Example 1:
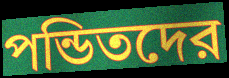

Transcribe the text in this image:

পন্ডিতদের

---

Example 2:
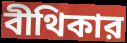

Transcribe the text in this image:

বীথিকার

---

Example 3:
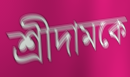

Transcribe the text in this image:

শ্রীদামকে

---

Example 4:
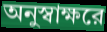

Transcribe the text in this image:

অনুস্বাক্ষরে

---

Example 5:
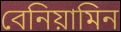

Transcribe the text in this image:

বেনিয়ামিন